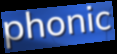
phonic